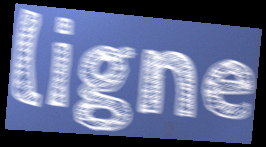
ligne